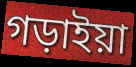
গড়াইয়া